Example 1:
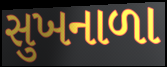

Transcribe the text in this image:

સુખનાળા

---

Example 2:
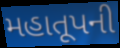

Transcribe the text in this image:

મહાતૂપની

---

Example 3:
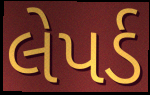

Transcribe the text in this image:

લેપર્ડ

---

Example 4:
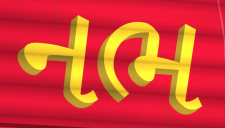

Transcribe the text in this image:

નભ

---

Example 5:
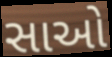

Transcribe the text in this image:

સાઓ